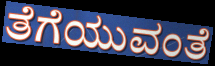
ತೆಗೆಯುವಂತೆ